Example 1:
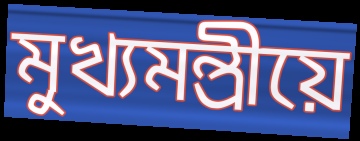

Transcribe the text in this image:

মুখ্যমন্ত্ৰীয়ে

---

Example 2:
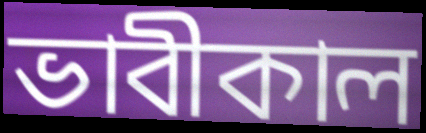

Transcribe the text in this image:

ভাবীকাল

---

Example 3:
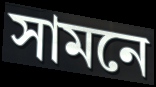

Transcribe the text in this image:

সামনে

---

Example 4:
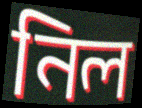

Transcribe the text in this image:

নিল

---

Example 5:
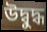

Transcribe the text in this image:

উদ্বুদ্ধ